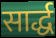
सार्द्ध